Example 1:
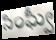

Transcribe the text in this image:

సింఘ్వీ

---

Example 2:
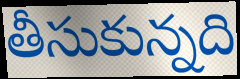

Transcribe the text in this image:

తీసుకున్నది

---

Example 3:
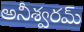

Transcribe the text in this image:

అనీశ్వరమ్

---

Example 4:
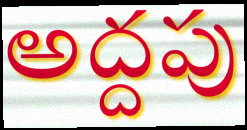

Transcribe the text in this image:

అద్దపు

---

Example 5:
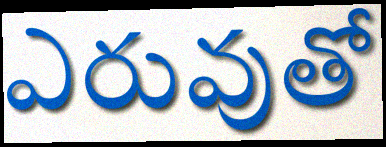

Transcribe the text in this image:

ఎరువుతో